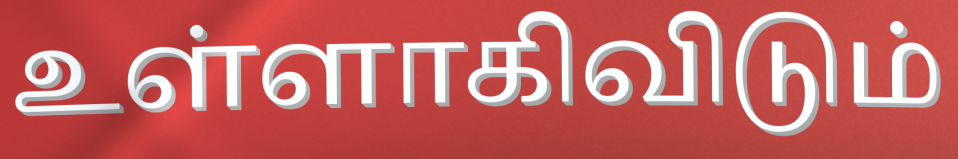
உள்ளாகிவிடும்